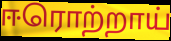
ஈரொற்றாய்